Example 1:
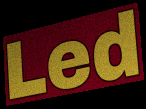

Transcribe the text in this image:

Led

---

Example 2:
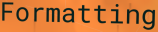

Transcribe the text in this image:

Formatting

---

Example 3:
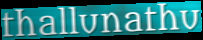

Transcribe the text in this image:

thallunathu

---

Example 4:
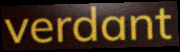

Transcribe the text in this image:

verdant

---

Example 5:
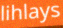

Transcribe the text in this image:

lihlays